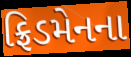
ફ્રિડમેનના